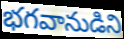
భగవానుడిని